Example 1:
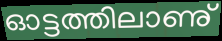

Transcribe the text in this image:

ഓട്ടത്തിലാണു്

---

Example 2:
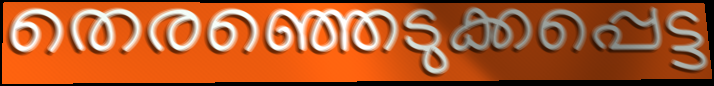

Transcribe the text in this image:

തെരഞ്ഞെടുക്കപ്പെട്ട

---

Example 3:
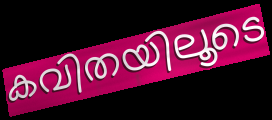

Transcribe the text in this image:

കവിതയിലൂടെ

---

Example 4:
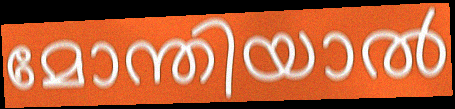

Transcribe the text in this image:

മോന്തിയാൽ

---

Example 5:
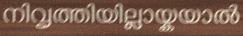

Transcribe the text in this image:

നിവൃത്തിയില്ലായ്കയാൽ